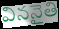
విననైతి